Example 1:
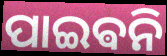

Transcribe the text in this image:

ପାଇଵନି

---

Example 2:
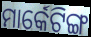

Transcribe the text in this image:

ମାର୍କେଟିଙ୍ଗ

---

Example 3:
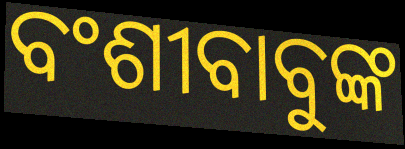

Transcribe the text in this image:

ବଂଶୀବାବୁଙ୍କ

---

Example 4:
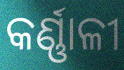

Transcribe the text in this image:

କର୍ଣ୍ଣାଳୀ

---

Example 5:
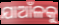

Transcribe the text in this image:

ଯାଆଁଳକୁ